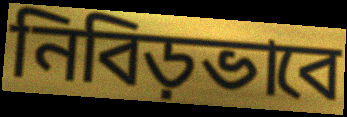
নিবিড়ভাবে